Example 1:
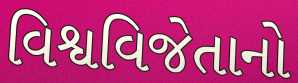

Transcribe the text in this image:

વિશ્વવિજેતાનો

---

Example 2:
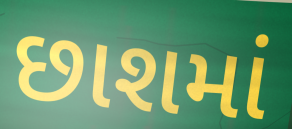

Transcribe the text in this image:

છાશમાં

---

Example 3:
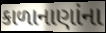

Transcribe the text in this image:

કાળાનાણાંના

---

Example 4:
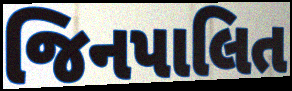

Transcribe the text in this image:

જિનપાલિત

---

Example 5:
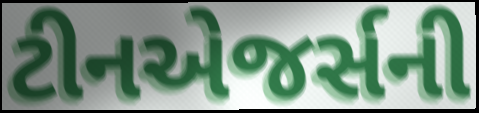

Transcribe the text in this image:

ટીનએજર્સની